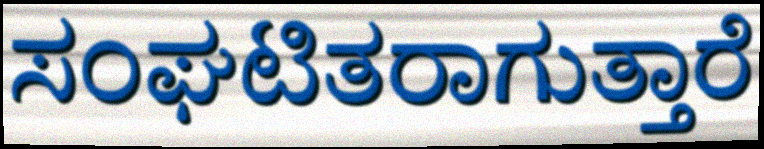
ಸಂಘಟಿತರಾಗುತ್ತಾರೆ